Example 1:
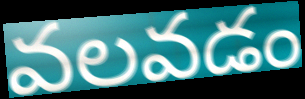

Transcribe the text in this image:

వలవడం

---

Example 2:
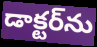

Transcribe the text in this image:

డాక్టర్‌ను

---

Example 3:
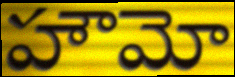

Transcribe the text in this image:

హౌమో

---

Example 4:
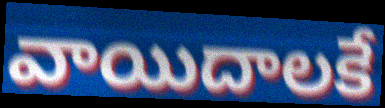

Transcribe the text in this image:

వాయిదాలకే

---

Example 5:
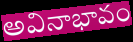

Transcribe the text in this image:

అవినాభావం